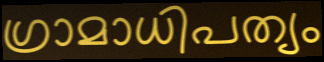
ഗ്രാമാധിപത്യം